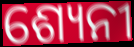
ଶ୍ୟେନୀ